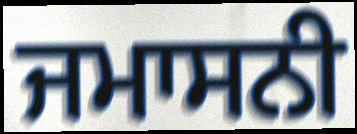
ਜਮਾਸਨੀ